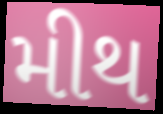
મીથ